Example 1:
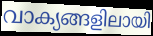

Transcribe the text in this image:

വാക്യങ്ങളിലായി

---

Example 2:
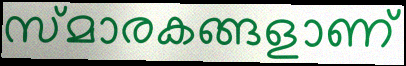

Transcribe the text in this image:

സ്മാരകങ്ങളാണ്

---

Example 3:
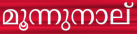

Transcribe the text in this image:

മൂന്നുനാല്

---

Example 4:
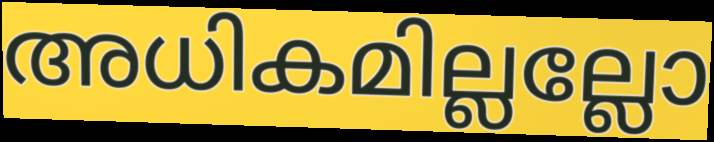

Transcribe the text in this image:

അധികമില്ലല്ലോ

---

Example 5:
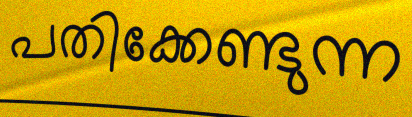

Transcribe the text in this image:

പതിക്കേണ്ടുന്ന